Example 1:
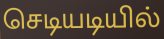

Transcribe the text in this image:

செடியடியில்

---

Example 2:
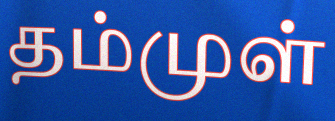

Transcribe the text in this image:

தம்முள்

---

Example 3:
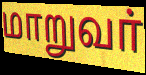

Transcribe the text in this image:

மாறுவர்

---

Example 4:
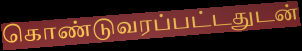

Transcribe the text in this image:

கொண்டுவரப்பட்டதுடன்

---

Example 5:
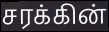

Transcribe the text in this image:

சரக்கின்